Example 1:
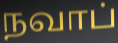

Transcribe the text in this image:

நவாப்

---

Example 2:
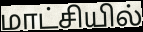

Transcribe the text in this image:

மாட்சியில்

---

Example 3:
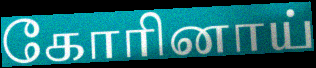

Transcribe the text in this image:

கோரினாய்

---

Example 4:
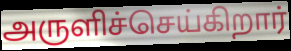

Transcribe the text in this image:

அருளிச்செய்கிறார்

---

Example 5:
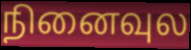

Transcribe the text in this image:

நினைவுல